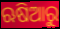
ଋଷିଆରୁ